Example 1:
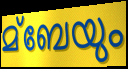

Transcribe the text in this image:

മ്ബേയും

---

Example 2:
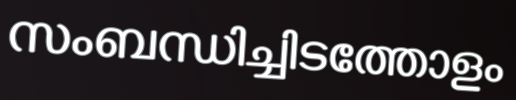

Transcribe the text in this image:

സംബന്ധിച്ചിടത്തോളം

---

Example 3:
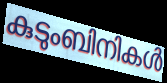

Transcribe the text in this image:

കുടുംബിനികൾ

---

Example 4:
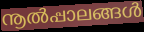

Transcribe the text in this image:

നൂൽപ്പാലങ്ങൾ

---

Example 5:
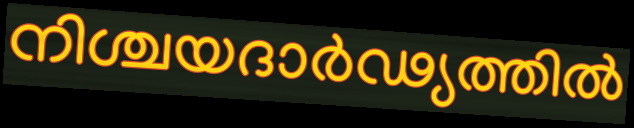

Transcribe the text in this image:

നിശ്ചയദാർഢ്യത്തിൽ